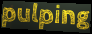
pulping